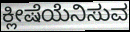
ಕ್ಲೀಷೆಯೆನಿಸುವ